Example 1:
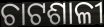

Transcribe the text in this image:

ଚାଟଶାଳୀ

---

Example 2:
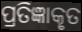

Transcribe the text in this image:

ପ୍ରତିଜ୍ଞାକୃତ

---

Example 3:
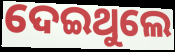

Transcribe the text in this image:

ଦେଇଥୁଲେ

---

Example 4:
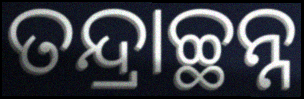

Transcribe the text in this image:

ତନ୍ଦ୍ରାଚ୍ଛନ୍ନ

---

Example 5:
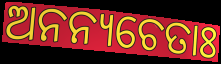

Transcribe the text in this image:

ଅନନ୍ୟଚେତାଃ